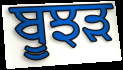
ਬੂਝੜ